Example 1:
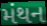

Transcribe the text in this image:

મંથન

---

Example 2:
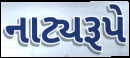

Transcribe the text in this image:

નાટ્યરૂપે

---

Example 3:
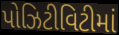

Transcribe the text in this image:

પોઝિટીવિટીમાં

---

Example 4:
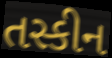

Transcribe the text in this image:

તસ્કીન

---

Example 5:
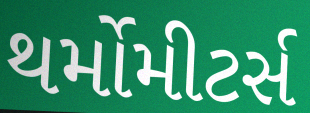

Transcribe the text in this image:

થર્મોમીટર્સ